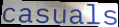
casuals